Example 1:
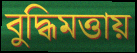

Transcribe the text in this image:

বুদ্ধিমত্তায়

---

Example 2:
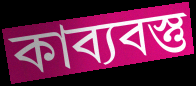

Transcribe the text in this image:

কাব্যবস্তু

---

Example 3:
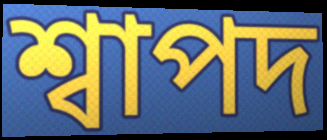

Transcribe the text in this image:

শ্বাপদ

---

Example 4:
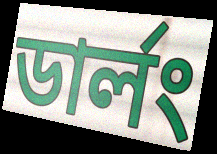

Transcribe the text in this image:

ডার্লং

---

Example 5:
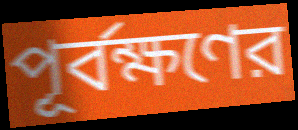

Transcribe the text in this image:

পূর্বক্ষণের